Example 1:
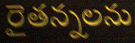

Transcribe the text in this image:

రైతన్నలను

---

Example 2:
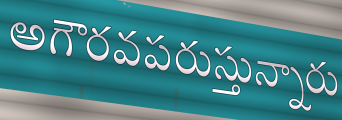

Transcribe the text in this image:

అగౌరవపరుస్తున్నారు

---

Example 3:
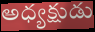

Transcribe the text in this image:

అధ్యక్షుడు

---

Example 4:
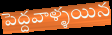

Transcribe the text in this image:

పెద్దవాళ్ళయిన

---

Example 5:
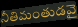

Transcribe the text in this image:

నీతిమంతుడవై